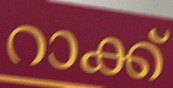
റാക്ക്